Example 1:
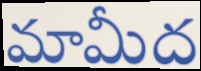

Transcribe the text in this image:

మామీద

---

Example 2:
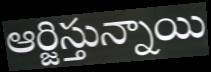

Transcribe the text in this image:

ఆర్జిస్తున్నాయి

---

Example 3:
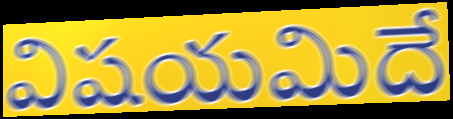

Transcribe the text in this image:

విషయమిదే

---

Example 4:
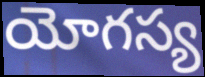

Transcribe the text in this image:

యోగస్య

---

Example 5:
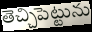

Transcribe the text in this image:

తెచ్చిపెట్టును